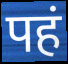
पहं